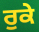
ਰੁਕੇ